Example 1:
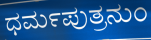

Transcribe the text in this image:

ಧರ್ಮಪುತ್ರನುಂ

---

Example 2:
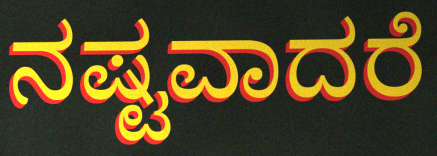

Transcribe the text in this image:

ನಷ್ಟವಾದರೆ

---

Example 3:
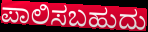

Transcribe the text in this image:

ಪಾಲಿಸಬಹುದು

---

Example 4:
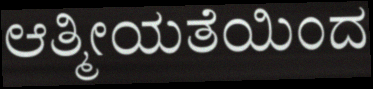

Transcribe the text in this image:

ಆತ್ಮೀಯತೆಯಿಂದ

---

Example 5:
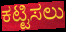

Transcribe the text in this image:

ಕಟ್ಟಿಸಲು